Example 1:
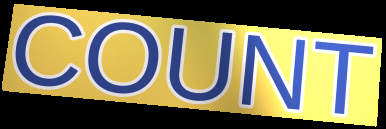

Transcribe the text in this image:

COUNT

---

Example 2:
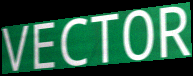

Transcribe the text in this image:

VECTOR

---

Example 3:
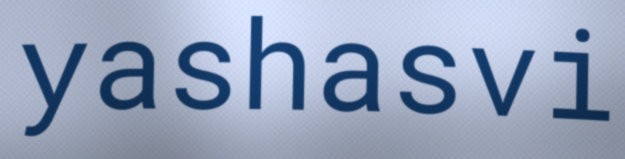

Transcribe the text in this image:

yashasvi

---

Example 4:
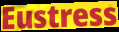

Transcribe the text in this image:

Eustress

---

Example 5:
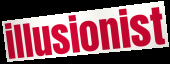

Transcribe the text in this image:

illusionist